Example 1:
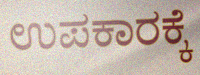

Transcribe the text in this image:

ಉಪಕಾರಕ್ಕೆ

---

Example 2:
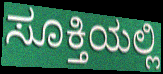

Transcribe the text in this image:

ಸೂಕ್ತಿಯಲ್ಲಿ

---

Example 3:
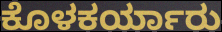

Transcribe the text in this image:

ಕೊಳಕರ್ಯಾರು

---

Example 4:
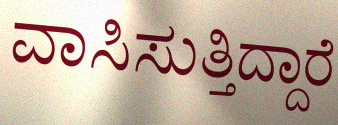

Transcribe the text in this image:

ವಾಸಿಸುತ್ತಿದ್ದಾರೆ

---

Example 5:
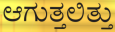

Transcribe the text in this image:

ಆಗುತ್ತಲಿತ್ತು